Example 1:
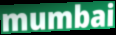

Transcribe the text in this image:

mumbai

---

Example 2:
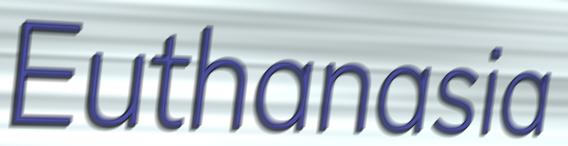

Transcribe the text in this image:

Euthanasia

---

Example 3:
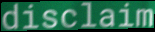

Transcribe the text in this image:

disclaim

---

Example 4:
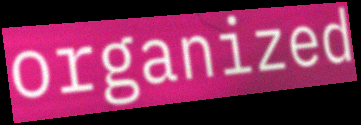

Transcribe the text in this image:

organized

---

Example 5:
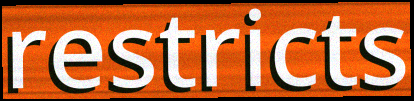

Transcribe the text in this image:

restricts